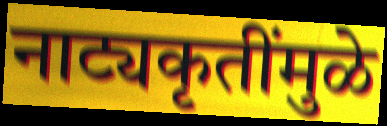
नाट्यकृतींमुळे